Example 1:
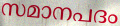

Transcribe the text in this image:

സമാനപദം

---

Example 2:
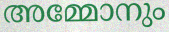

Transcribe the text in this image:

അമ്മോനും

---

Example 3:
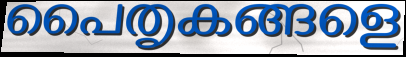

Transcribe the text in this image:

പൈതൃകങ്ങളെ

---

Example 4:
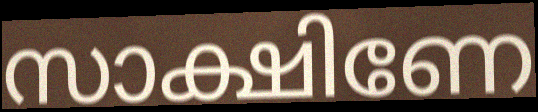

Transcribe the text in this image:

സാക്ഷിണേ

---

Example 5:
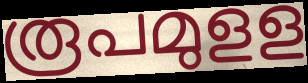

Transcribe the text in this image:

രൂപമുളള